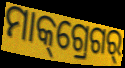
ମାକ୍‌ଗ୍ରେଗର୍